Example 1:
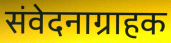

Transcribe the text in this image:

संवेदनाग्राहक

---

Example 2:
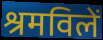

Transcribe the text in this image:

श्रमविलें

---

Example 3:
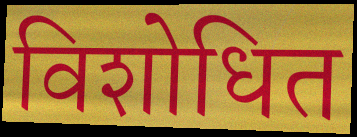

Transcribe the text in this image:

विशोधित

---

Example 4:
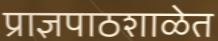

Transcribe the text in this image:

प्राज्ञपाठशाळेत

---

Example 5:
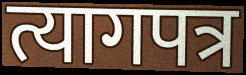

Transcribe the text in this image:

त्यागपत्र